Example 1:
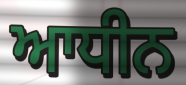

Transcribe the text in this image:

ਆਧੀਨ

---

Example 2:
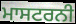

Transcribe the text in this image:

ਮਾਸਟਰਨੀ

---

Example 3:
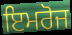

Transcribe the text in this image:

ਇਮਰੋਜ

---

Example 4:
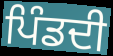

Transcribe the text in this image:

ਪਿੰਡਦੀ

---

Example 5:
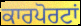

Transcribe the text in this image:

ਕਾਰਪੋਰਟਾਂ